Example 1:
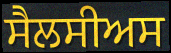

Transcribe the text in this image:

ਸੈਲਸੀਅਸ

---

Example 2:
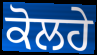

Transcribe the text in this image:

ਕੋਲਹੇ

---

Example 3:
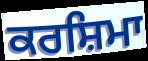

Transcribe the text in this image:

ਕਰਸ਼ਿਮਾ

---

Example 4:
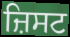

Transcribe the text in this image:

ਜ਼ਿਸਟ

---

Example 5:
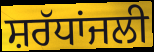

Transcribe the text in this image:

ਸ਼ਰੱਧਾਂਜਲੀ